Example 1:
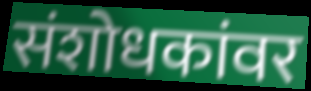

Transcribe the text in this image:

संशोधकांवर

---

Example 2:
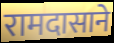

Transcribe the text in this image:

रामदासाने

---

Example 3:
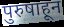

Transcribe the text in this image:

पुरुषाहून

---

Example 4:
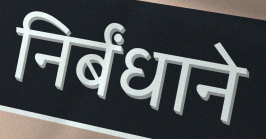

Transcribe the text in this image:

निर्बंधाने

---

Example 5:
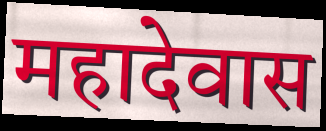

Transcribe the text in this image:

महादेवास